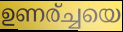
ഉണര്ച്ചയെ